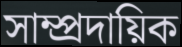
সাম্প্রদায়িক